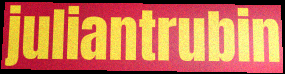
juliantrubin